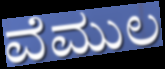
ವೆಮುಲ